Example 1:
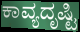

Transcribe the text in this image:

ಕಾವ್ಯದೃಷ್ಟಿ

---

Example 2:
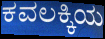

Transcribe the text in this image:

ಕವಲಕ್ಕಿಯ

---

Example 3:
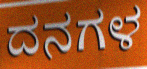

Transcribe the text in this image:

ದನಗಳ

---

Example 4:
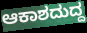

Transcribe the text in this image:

ಆಕಾಶದುದ್ದ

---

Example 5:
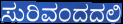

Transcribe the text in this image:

ಸುರಿವಂದದಲಿ